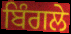
ਬਿੰਗਲੇ